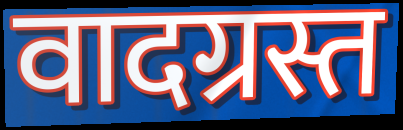
वादग्रस्त